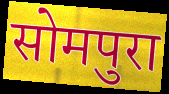
सोमपुरा